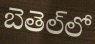
బెతెల్‌లో